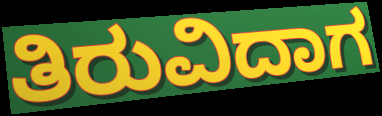
ತಿರುವಿದಾಗ